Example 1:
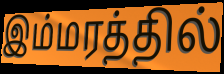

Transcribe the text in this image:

இம்மரத்தில்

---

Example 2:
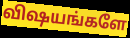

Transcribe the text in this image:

விஷயங்களே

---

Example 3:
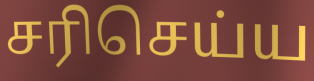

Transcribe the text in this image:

சரிசெய்ய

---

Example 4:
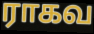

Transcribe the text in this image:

ராகவ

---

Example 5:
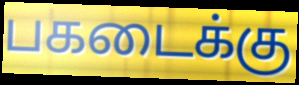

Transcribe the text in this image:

பகடைக்கு